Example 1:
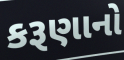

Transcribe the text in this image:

કરૂણાનો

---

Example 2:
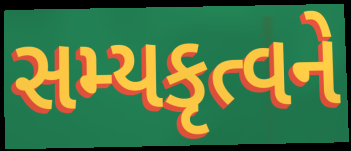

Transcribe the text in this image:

સમ્યકૃત્વને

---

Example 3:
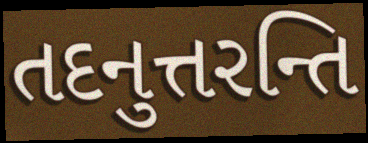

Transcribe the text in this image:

તદનુત્તરન્તિ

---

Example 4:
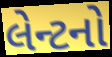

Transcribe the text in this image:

લેન્ટનો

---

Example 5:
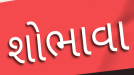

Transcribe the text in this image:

શોભાવા